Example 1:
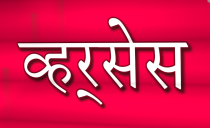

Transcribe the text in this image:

व्हर्सेस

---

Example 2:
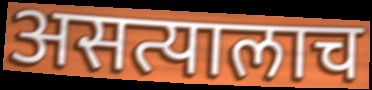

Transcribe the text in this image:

असत्यालाच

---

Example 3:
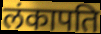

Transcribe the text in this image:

लंकापति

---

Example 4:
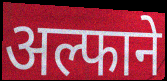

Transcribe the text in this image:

अल्फाने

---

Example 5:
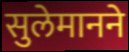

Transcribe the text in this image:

सुलेमानने